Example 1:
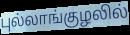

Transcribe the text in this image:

புல்லாங்குழலில்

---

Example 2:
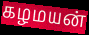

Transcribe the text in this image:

கழமயன்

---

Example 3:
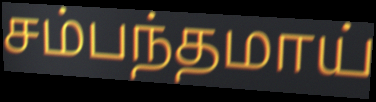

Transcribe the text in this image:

சம்பந்தமாய்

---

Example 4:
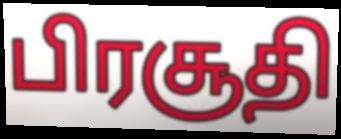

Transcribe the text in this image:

பிரசூதி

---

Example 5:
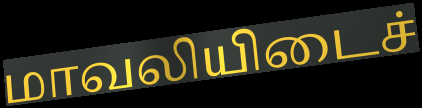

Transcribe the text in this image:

மாவலியிடைச்